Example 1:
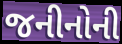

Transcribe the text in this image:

જનીનોની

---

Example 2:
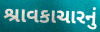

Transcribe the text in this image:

શ્રાવકાચારનું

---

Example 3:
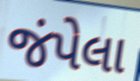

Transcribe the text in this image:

જંપેલા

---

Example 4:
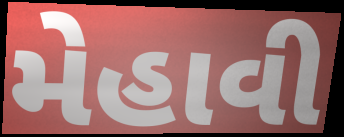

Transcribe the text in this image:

મેહાવી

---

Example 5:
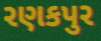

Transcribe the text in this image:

રણકપુર